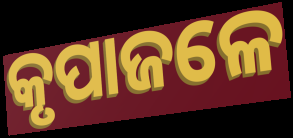
କୃପାଜଳେ